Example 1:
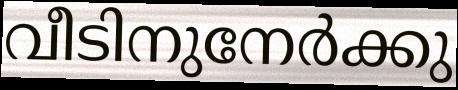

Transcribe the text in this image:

വീടിനുനേർക്കു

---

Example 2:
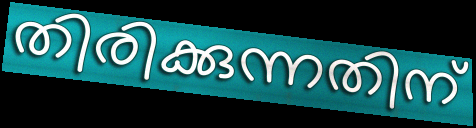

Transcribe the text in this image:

തിരിക്കുന്നതിന്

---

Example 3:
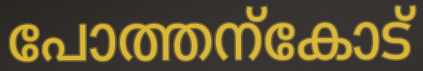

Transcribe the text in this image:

പോത്തന്കോട്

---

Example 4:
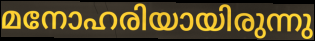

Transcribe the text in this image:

മനോഹരിയായിരുന്നു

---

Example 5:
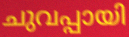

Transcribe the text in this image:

ചുവപ്പായി